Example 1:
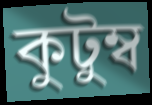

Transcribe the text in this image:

কুটুম্ব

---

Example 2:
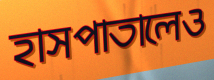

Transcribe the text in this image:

হাসপাতালেও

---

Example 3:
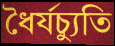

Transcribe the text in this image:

ধৈর্যচ্যুতি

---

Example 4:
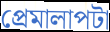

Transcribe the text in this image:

প্রেমালাপটা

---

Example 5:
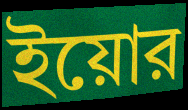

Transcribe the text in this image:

ইয়োর